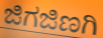
ಜಿಗಜಿಣಗಿ